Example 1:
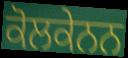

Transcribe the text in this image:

ਕੋਲਕੇਨਨ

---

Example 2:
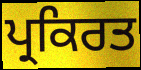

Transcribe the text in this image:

ਪ੍ਰਕਿਰਤ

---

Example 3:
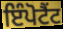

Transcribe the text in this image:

ਇੰਪੋਟੈਂਟ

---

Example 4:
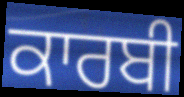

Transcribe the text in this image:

ਕਾਰਬੀ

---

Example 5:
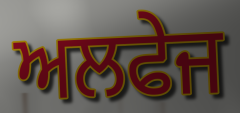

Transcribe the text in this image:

ਅਲਫੇਜ